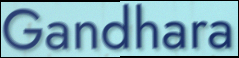
Gandhara